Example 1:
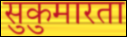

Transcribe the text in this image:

सुकुमारता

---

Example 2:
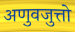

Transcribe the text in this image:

अणुवजुत्तो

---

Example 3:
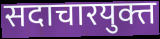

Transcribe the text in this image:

सदाचारयुक्त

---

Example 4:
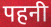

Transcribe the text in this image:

पहनी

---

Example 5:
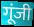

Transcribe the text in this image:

गूंजी